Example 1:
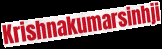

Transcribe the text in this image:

Krishnakumarsinhji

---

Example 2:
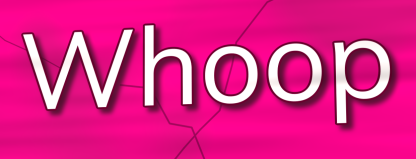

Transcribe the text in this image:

Whoop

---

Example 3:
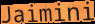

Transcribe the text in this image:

Jaimini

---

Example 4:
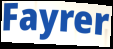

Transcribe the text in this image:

Fayrer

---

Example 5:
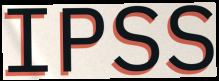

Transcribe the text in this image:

IPSS